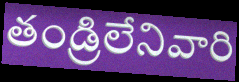
తండ్రిలేనివారి